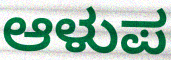
ಆಳುಪ